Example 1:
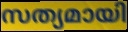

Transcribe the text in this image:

സത്യമായി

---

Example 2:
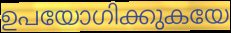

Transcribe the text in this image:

ഉപയോഗിക്കുകയേ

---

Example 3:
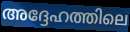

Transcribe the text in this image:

അദ്ദേഹത്തിലെ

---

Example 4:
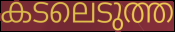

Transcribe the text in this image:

കടലെടുത്ത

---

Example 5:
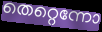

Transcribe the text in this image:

തെറ്റെന്നോ